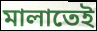
মালাতেই